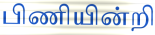
பிணியின்றி